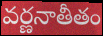
వర్ణనాతీతం